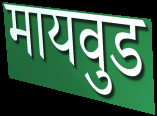
मायवुड